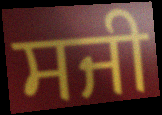
ਸਜੀ